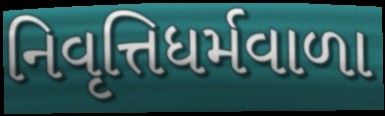
નિવૃત્તિધર્મવાળા